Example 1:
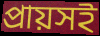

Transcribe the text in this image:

প্রায়সই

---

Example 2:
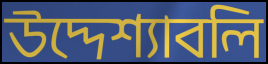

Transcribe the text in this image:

উদ্দেশ্যাবলি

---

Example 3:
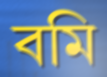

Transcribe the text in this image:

বমি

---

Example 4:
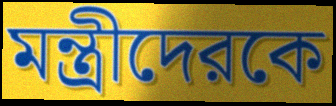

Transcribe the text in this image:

মন্ত্রীদেরকে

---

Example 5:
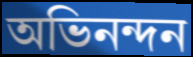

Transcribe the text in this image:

অভিনন্দন